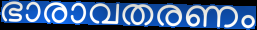
ഭാരാവതരണം